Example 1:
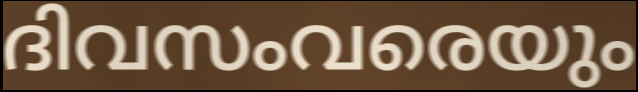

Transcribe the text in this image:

ദിവസംവരെയും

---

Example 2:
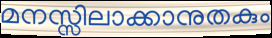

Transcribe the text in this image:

മനസ്സിലാക്കാനുതകും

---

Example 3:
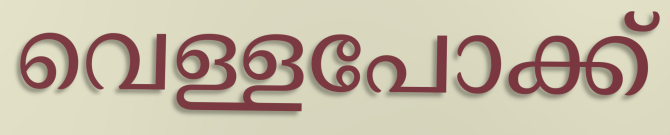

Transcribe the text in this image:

വെള്ളപോക്ക്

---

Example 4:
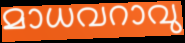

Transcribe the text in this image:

മാധവറാവു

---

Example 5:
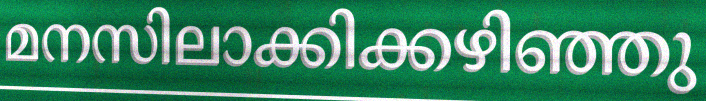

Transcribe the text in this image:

മനസിലാക്കിക്കഴിഞ്ഞു